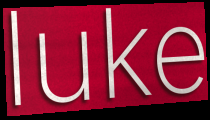
luke